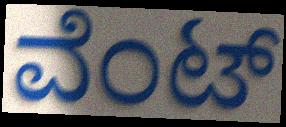
ವೆಂಟ್